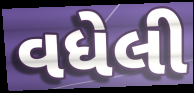
વધેલી